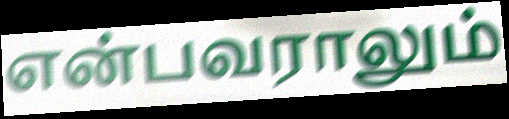
என்பவராலும்